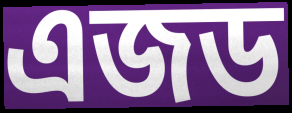
এজড